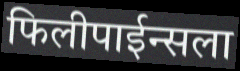
फिलीपाईन्सला